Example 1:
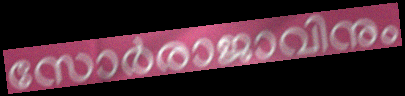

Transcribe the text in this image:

സോർരാജാവിനും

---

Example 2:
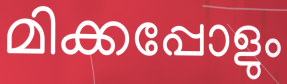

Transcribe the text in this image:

മിക്കപ്പോളും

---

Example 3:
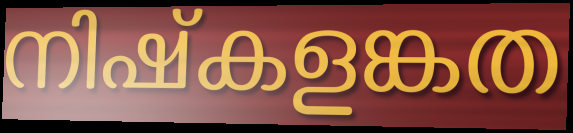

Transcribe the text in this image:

നിഷ്‌കളങ്കത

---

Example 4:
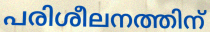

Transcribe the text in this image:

പരിശീലനത്തിന്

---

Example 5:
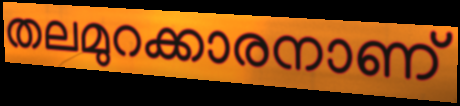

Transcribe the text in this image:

തലമുറക്കാരനാണ്